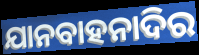
ଯାନବାହନାଦିର